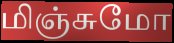
மிஞ்சுமோ